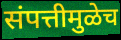
संपत्तीमुळेच